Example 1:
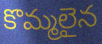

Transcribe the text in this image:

కొమ్మలైన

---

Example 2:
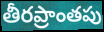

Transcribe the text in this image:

తీరప్రాంతపు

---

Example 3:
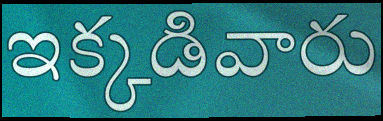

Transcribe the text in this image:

ఇక్కడివారు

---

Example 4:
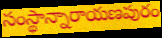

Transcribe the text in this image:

సంస్థాన్నారాయణపురం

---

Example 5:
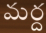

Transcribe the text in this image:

మర్ద